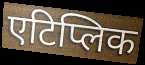
एटिप्लिक